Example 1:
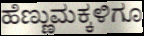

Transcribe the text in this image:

ಹೆಣ್ಣುಮಕ್ಕಳಿಗೂ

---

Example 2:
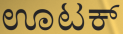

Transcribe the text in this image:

ಊಟಕ್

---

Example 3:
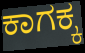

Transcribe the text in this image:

ಕಾಗಕ್ಕ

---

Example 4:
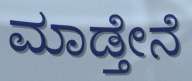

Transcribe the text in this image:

ಮಾಡ್ತೇನೆ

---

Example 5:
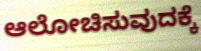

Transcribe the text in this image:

ಆಲೋಚಿಸುವುದಕ್ಕೆ